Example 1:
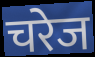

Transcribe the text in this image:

चरेज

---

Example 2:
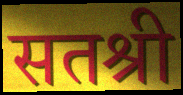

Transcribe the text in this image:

सतश्री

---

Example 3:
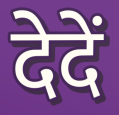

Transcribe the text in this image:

देदें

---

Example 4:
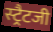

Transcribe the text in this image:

स्‍ट्रैटजी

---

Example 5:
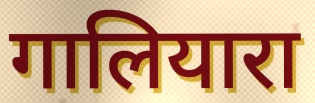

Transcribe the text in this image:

गालियारा